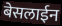
बेसलाईन